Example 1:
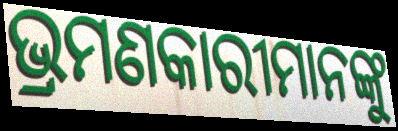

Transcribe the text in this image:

ଭ୍ରମଣକାରୀମାନଙ୍କୁ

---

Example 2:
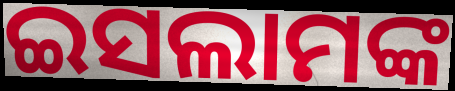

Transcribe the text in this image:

ଇସଲାମଙ୍କ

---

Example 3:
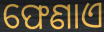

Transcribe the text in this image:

ଫେଣାଏ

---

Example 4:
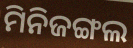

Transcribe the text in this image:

ମିନିଜଙ୍ଗଲ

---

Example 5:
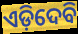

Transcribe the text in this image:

ଏଡ଼ିଦେବି